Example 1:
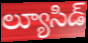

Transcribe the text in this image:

ల్యూసిడ్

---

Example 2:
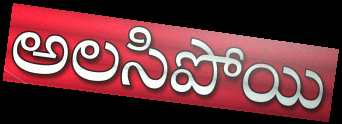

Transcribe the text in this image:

అలసిపోయి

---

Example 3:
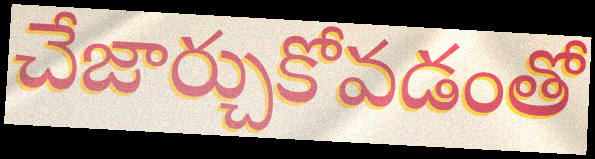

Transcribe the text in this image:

చేజార్చుకోవడంతో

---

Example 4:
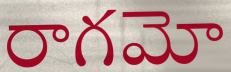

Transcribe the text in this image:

రాగమో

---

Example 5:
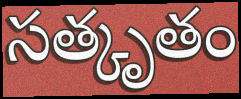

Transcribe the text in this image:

సత్కృతం